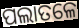
ପଲାତଳେ